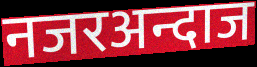
नजरअन्दाज